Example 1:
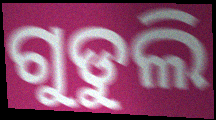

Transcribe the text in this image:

ଗୁଡୁଲି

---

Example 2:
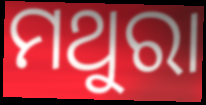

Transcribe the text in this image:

ମଥୁରା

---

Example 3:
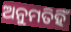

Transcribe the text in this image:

ଅନୁମତିହିଁ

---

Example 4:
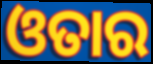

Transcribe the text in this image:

ଓତାର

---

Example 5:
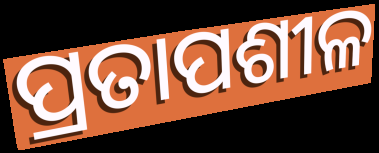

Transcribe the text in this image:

ପ୍ରତାପଶୀଳ